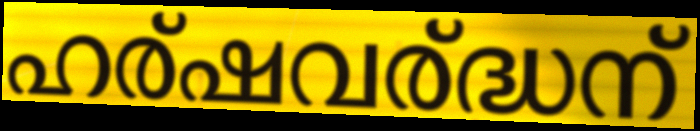
ഹര്ഷവര്ദ്ധന്